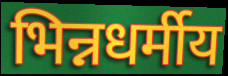
भिन्नधर्मीय